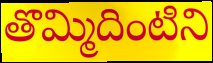
తొమ్మిదింటిని